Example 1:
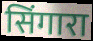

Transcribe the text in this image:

सिंगारा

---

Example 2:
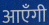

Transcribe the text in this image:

आएँगी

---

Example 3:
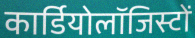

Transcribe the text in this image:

कार्डियोलॉजिस्टों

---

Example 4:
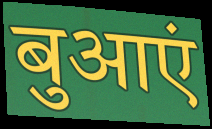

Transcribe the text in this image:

बुआएं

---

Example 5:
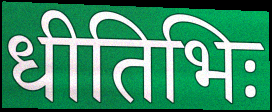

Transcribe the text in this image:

धीतिभिः